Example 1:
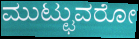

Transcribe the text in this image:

ಮುಟ್ಟುವರೋ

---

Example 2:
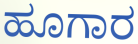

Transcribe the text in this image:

ಹೂಗಾರ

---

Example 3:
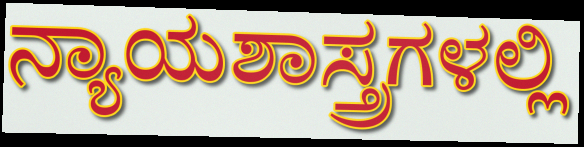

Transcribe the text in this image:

ನ್ಯಾಯಶಾಸ್ತ್ರಗಳಲ್ಲಿ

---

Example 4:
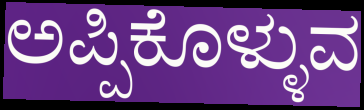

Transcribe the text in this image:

ಅಪ್ಪಿಕೊಳ್ಳುವ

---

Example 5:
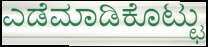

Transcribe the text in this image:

ಎಡೆಮಾಡಿಕೊಟ್ಟು